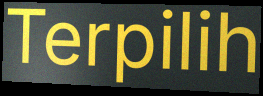
Terpilih